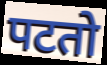
पटतो